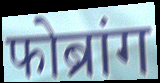
फोब्रांग